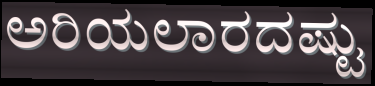
ಅರಿಯಲಾರದಷ್ಟು